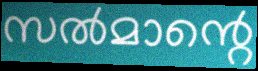
സൽമാന്റെ